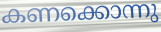
കണക്കൊന്നു